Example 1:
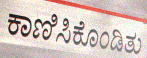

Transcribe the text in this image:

ಕಾಣಿಸಿಕೊಂಡಿತು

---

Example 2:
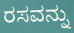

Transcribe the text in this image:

ರಸವನ್ನು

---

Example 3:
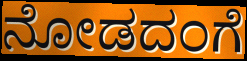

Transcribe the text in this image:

ನೋಡದಂಗೆ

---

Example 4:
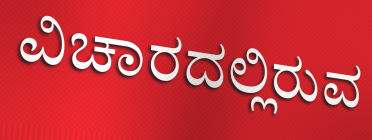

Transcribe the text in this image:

ವಿಚಾರದಲ್ಲಿರುವ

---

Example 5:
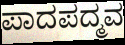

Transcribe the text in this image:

ಪಾದಪದ್ಮವ